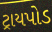
ટ્રાયપોડ